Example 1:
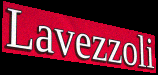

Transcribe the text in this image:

Lavezzoli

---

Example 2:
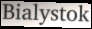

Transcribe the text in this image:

Bialystok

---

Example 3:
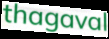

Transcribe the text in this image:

thagaval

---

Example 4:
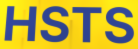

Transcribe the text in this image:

HSTS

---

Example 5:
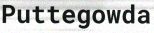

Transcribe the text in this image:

Puttegowda